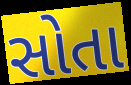
સોતા